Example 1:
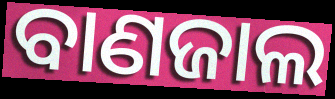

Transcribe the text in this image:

ବାଣଜାଲ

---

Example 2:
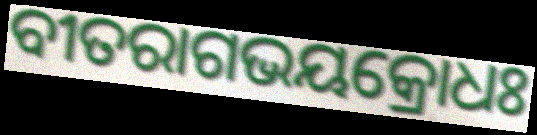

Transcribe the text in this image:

ବୀତରାଗଭୟକ୍ରୋଧଃ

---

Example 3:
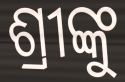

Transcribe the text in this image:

ଶ୍ରୀଙ୍କୁ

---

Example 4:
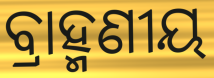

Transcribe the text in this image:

ବ୍ରାହ୍ମଣୀୟ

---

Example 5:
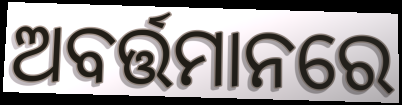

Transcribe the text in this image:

ଅବର୍ତ୍ତମାନରେ